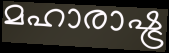
മഹാരാഷ്ട്ര